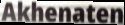
Akhenaten